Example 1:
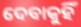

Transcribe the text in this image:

ଦେବାକୁହିଁ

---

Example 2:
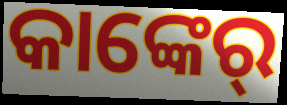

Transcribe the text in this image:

କାଙ୍କେର୍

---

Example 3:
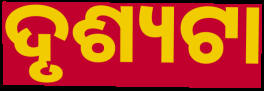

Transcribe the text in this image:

ଦୃଶ୍ୟଟା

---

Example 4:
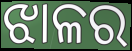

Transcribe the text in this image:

ଝାଳର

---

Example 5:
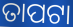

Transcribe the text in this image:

ତାପଟା